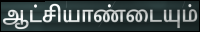
ஆட்சியாண்டையும்